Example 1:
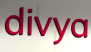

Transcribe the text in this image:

divya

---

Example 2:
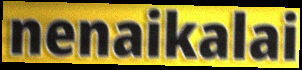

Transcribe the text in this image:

nenaikalai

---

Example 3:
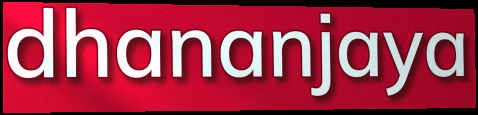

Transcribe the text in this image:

dhananjaya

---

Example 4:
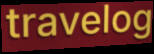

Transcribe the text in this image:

travelog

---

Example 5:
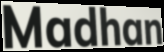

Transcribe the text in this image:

Madhan